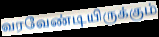
வரவேண்டியிருக்கும்